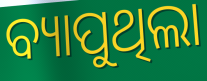
ବ୍ୟାପୁଥିଲା